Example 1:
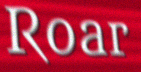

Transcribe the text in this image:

Roar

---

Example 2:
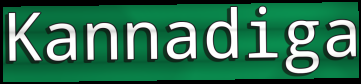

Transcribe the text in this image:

Kannadiga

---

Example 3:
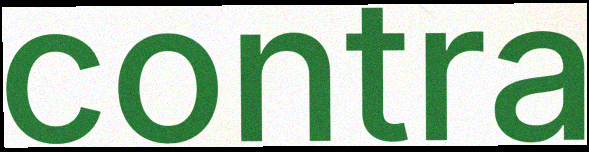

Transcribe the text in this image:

contra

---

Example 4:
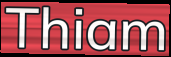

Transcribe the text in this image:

Thiam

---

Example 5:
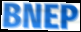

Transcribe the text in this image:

BNEP